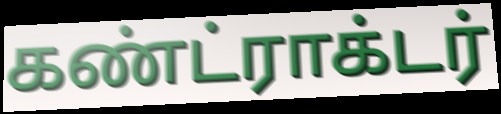
கண்ட்ராக்டர்